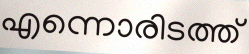
എന്നൊരിടത്ത്